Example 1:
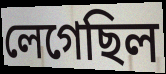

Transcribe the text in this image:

লেগেছিল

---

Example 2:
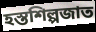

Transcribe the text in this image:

হস্তশিল্পজাত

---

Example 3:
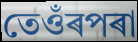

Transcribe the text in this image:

তেওঁৰপৰা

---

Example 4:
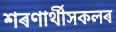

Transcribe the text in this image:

শৰণাৰ্থীসকলৰ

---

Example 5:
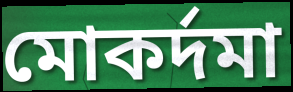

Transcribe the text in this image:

মোকৰ্দমা